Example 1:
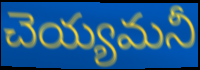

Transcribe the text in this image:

చెయ్యమనీ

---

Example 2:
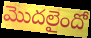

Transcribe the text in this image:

మొదలైందో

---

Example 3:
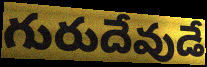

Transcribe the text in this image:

గురుదేవుడే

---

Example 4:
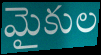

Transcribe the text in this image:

మైకుల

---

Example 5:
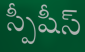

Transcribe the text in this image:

స్పీషీస్